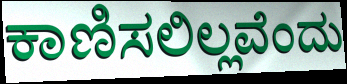
ಕಾಣಿಸಲಿಲ್ಲವೆಂದು